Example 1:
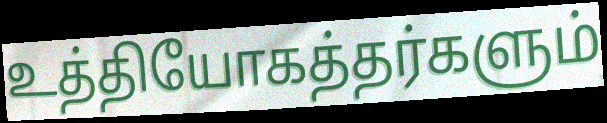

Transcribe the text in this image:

உத்தியோகத்தர்களும்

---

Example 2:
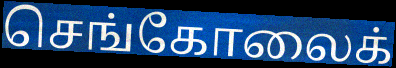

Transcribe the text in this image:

செங்கோலைக்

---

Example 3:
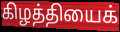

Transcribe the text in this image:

கிழத்தியைக்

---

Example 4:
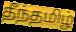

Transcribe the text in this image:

தீந்தமிழ்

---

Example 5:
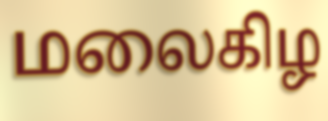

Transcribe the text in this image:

மலைகிழ